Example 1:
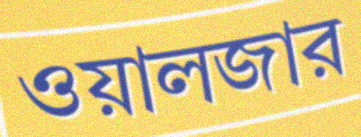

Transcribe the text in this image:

ওয়ালজার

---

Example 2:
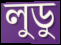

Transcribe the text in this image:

লুডু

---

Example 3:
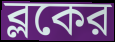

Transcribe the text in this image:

ব্লকের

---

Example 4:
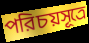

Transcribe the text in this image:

পরিচয়সূত্রে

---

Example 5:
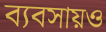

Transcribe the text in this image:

ব্যবসায়ও